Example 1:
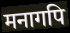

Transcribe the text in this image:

मनागपि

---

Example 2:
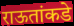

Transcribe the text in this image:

राऊतांकडे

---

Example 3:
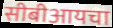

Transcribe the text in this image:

सीबीआयचा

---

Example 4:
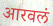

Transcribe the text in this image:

आरवलं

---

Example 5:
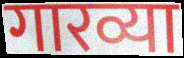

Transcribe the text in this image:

गारव्या